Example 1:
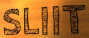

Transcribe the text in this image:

SLIIT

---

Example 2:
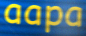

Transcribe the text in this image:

aapa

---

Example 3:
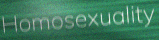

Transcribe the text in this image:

Homosexuality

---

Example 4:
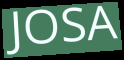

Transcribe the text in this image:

JOSA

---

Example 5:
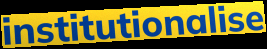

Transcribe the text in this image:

institutionalise